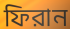
ফিরান